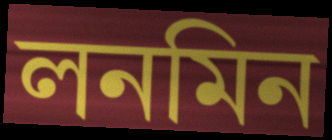
লনমিন